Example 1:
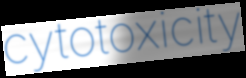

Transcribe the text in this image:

cytotoxicity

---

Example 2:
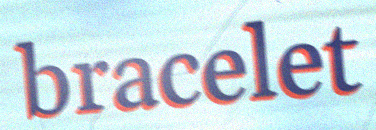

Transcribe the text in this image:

bracelet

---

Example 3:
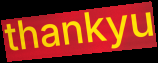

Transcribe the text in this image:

thankyu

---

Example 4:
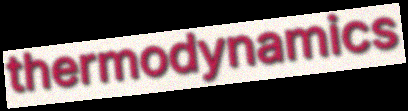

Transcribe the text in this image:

thermodynamics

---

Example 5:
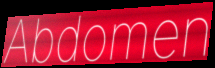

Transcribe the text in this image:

Abdomen